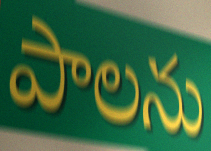
పాలను